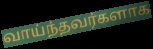
வாய்ந்தவர்களாக